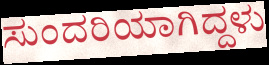
ಸುಂದರಿಯಾಗಿದ್ದಳು